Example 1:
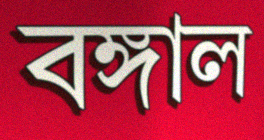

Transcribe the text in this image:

বঙ্গাল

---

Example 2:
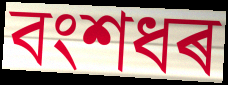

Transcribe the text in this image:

বংশধৰ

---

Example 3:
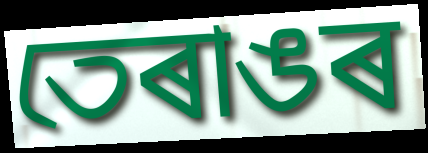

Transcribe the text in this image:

তেৰাঙৰ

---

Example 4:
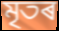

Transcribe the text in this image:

মৃতৰ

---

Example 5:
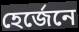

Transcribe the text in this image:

হেৰ্জেনে